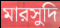
মারসুদি